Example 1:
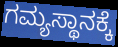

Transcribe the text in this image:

ಗಮ್ಯಸ್ಥಾನಕ್ಕೆ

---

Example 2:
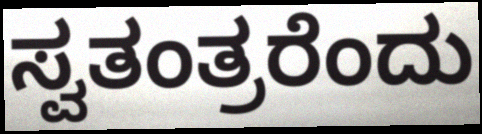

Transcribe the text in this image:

ಸ್ವತಂತ್ರರೆಂದು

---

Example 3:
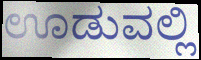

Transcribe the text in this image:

ಊಡುವಲ್ಲಿ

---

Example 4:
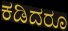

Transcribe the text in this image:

ಕಡಿದರೂ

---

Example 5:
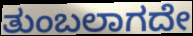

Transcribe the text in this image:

ತುಂಬಲಾಗದೇ